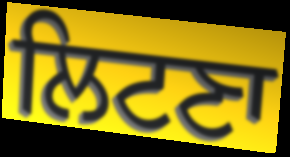
ਲਿਟਣਾ